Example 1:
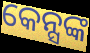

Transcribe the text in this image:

କେନ୍ସଙ୍କ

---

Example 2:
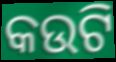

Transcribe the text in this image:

କଉଟି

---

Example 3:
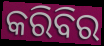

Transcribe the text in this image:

କରିବିର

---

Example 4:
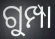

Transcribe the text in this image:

ଗୁମ୍ପା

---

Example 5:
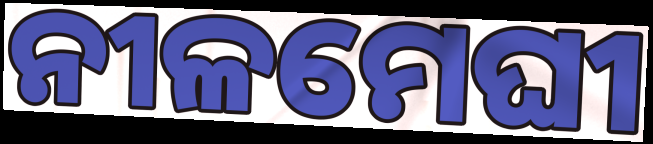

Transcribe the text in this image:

ନୀଳମେଘୀ